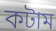
কটাম